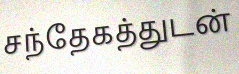
சந்தேகத்துடன்